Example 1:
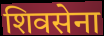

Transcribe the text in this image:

शिवसेना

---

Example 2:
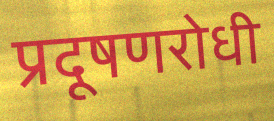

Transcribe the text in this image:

प्रदूषणरोधी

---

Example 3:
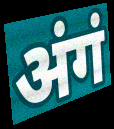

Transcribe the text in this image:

अंगं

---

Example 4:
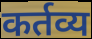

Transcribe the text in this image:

कर्तव्य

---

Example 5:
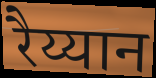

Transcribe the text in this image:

रैय्यान